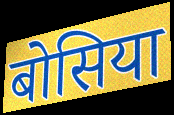
बोसिया